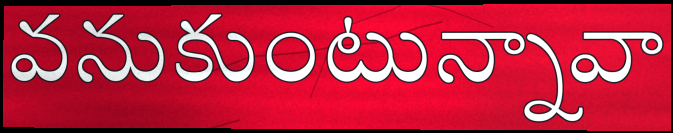
వనుకుంటున్నావా